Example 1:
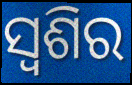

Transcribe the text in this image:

ସ୍ଵଶିର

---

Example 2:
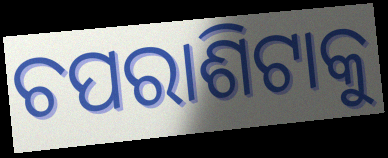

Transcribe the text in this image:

ଚପରାଶିଟାକୁ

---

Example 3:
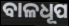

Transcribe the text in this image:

ବାଳଧୂପ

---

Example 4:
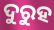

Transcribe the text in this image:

ଦୁରୁହ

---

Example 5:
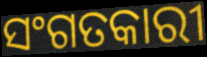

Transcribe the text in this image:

ସଂଗତକାରୀ